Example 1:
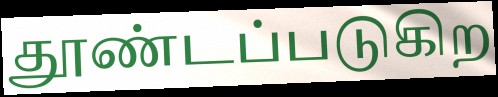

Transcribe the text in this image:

தூண்டப்படுகிற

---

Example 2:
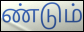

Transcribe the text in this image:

ண்டும்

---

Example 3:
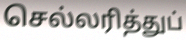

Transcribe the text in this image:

செல்லரித்துப்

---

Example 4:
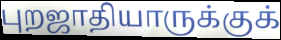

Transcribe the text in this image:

புறஜாதியாருக்குக்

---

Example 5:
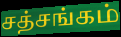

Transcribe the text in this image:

சத்சங்கம்